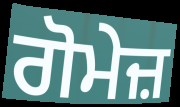
ਗੋਮੇਜ਼